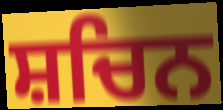
ਸ਼ਚਿਨ